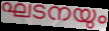
ഘടനയും